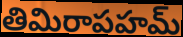
తిమిరాపహమ్